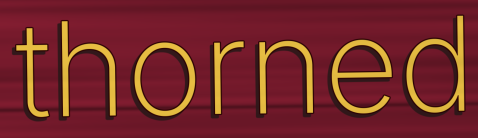
thorned